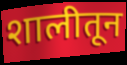
शालीतून